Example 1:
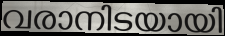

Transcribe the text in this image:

വരാനിടയായി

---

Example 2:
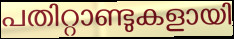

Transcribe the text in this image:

പതിറ്റാണ്ടുകളായി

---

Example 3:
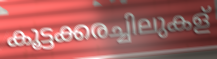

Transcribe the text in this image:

കൂട്ടക്കരച്ചിലുകള്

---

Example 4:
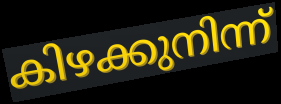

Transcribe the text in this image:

കിഴക്കുനിന്ന്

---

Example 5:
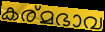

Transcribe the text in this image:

കര്മഭാവ